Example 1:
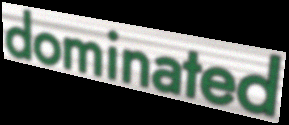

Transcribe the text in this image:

dominated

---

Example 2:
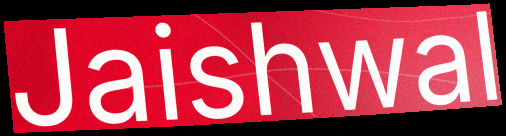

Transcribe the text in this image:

Jaishwal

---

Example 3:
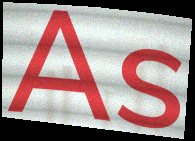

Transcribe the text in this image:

As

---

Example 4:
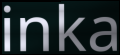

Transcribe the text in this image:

inka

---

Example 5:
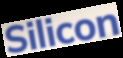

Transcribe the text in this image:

Silicon